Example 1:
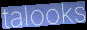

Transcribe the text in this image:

talooks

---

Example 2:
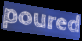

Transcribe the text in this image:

poured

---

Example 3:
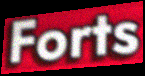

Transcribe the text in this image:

Forts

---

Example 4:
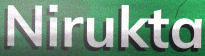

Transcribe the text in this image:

Nirukta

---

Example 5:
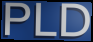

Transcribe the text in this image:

PLD